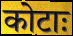
कोटाः